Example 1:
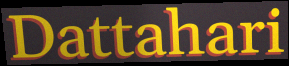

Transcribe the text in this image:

Dattahari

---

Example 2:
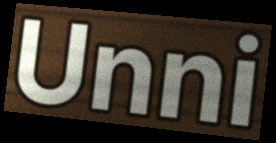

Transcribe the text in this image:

Unni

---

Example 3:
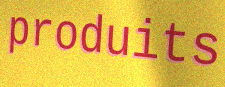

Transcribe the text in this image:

produits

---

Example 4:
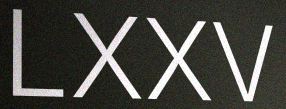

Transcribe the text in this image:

LXXV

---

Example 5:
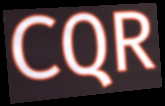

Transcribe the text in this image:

CQR